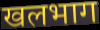
खलभाग